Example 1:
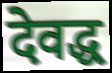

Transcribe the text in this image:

देवद्ध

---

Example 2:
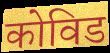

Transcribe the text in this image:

कोविड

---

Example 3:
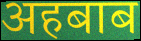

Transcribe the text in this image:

अहबाब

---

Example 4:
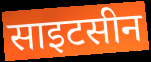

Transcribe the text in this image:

साइटसीन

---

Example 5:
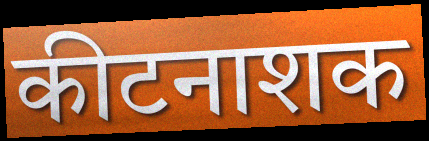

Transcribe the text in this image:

कीटनाशक